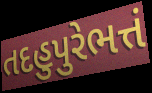
તદહુપુરેભત્તં